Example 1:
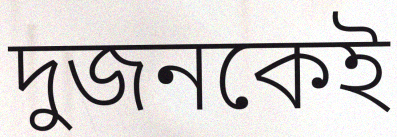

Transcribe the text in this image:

দুজনকেই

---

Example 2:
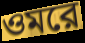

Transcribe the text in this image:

ওমরে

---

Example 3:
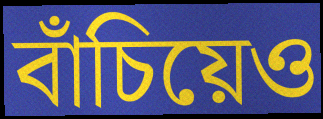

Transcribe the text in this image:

বাঁচিয়েও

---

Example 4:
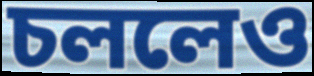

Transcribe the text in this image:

চললেও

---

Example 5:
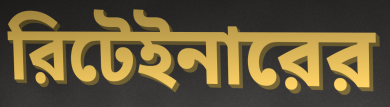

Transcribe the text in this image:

রিটেইনারের